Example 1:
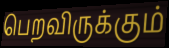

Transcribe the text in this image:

பெறவிருக்கும்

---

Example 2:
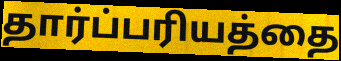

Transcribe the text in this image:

தார்ப்பரியத்தை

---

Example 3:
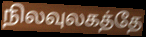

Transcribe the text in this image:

நிலவுலகத்தே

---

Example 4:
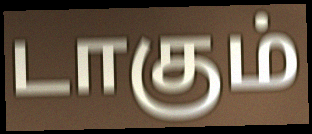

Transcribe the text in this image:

டாகும்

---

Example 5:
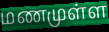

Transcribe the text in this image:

மணமுள்ள